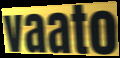
vaato